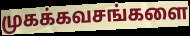
முகக்கவசங்களை